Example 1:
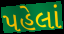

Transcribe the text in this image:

પહેલાં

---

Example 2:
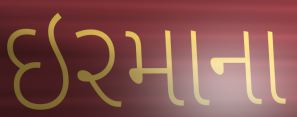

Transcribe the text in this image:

ઇરમાના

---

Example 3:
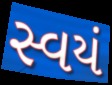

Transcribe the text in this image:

સ્વયં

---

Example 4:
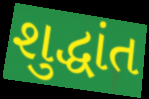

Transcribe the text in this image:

શુદ્ધાંત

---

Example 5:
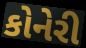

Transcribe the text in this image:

કોનેરી